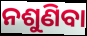
ନଶୁଣିବା